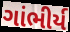
ગાંભીર્ય